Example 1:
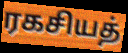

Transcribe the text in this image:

ரகசியத்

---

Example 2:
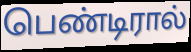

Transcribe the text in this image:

பெண்டிரால்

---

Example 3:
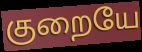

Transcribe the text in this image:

குறையே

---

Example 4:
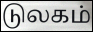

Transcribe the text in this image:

டுலகம்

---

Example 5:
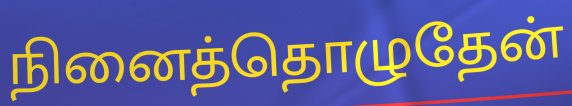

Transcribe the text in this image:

நினைத்தொழுதேன்